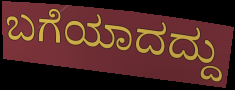
ಬಗೆಯಾದದ್ದು